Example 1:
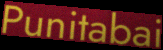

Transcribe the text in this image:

Punitabai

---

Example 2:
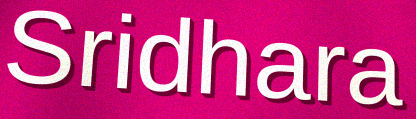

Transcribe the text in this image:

Sridhara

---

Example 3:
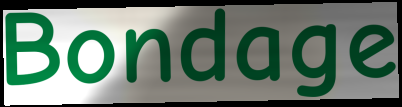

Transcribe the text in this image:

Bondage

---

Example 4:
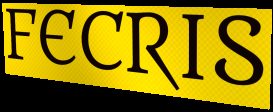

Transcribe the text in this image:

FECRIS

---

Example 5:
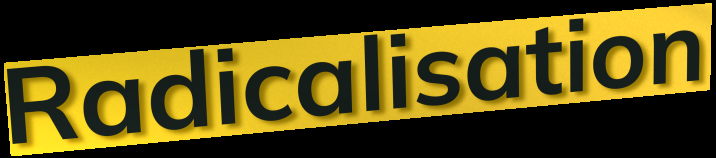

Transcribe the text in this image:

Radicalisation